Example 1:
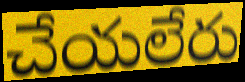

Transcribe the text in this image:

చేయలేరు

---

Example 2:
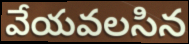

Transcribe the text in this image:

వేయవలసిన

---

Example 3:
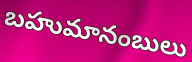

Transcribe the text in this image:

బహుమానంబులు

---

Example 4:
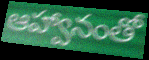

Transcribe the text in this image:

ఆహ్వానంతో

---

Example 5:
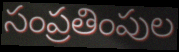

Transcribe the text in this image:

సంప్రతింపుల